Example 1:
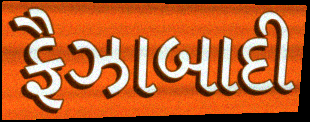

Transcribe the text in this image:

ફૈઝાબાદી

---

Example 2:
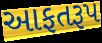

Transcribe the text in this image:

આફતરૂપ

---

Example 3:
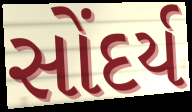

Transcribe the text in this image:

સોંદર્ય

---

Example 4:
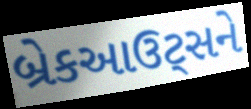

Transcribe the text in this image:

બ્રેકઆઉટ્સને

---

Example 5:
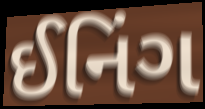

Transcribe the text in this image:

ઈનિંગ